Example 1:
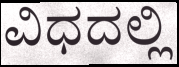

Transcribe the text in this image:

ವಿಧದಲ್ಲಿ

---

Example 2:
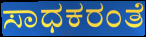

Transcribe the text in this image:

ಸಾಧಕರಂತೆ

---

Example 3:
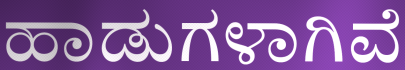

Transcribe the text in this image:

ಹಾಡುಗಳಾಗಿವೆ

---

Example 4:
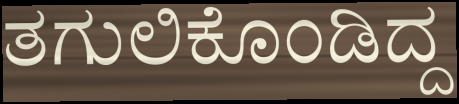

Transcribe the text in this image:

ತಗುಲಿಕೊಂಡಿದ್ದ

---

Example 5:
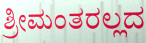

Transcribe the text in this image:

ಶ್ರೀಮಂತರಲ್ಲದ